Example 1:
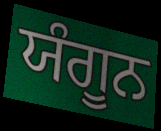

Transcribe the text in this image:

ਯੰਗੂਨ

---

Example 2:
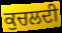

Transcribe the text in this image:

ਕੁਚਲਦੀ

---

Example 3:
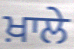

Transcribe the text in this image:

ਖ਼ਾਲੇ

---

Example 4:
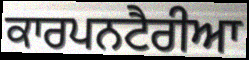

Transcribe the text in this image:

ਕਾਰਪਨਟੈਰੀਆ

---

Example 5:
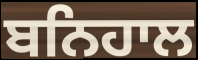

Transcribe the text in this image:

ਬਨਿਹਾਲ